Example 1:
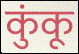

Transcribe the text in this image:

कुंकू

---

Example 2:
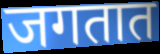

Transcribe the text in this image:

जगतात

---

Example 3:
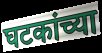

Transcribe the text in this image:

घटकांच्या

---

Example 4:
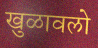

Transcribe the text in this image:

खुळावलो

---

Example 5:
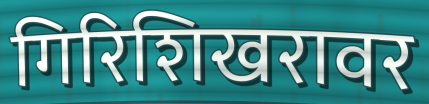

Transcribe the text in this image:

गिरिशिखरावर